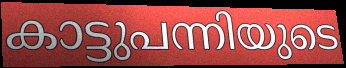
കാട്ടുപന്നിയുടെ